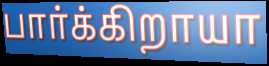
பார்க்கிறாயா